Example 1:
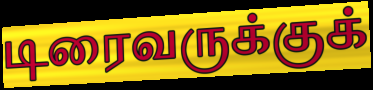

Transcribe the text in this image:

டிரைவருக்குக்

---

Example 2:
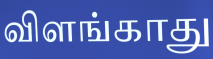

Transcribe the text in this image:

விளங்காது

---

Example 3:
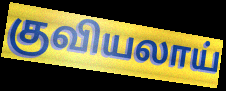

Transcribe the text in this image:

குவியலாய்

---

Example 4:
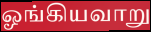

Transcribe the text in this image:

ஓங்கியவாறு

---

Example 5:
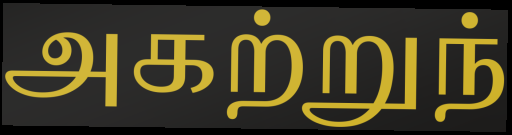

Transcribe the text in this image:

அகற்றுந்